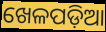
ଖେଳପଡ଼ିଆ